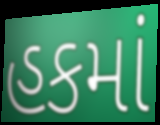
હકમાં